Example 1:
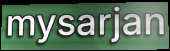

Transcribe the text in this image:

mysarjan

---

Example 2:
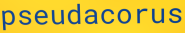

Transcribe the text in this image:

pseudacorus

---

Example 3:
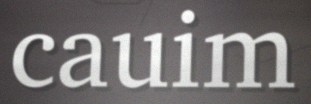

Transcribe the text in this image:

cauim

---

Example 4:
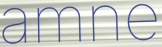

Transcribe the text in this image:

amne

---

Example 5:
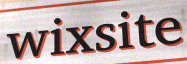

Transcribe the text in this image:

wixsite